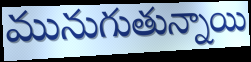
మునుగుతున్నాయి